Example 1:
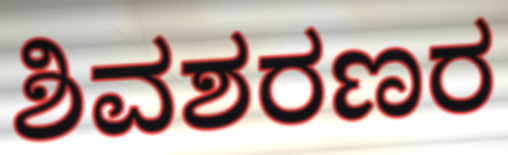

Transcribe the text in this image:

ಶಿವಶರಣರ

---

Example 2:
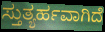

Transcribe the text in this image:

ಸ್ತುತ್ಯರ್ಹವಾಗಿದೆ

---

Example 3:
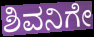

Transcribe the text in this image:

ಶಿವನಿಗೇ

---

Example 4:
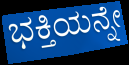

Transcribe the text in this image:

ಭಕ್ತಿಯನ್ನೇ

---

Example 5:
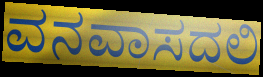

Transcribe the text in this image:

ವನವಾಸದಲಿ